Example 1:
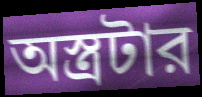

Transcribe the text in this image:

অস্ত্রটার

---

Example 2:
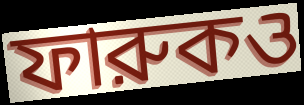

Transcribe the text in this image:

ফারুকও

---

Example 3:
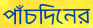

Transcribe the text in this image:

পাঁচদিনের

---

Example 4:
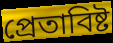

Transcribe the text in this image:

প্রেতাবিষ্ট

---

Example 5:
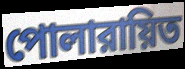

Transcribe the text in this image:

পোলারায়িত